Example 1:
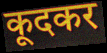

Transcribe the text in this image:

कूदकर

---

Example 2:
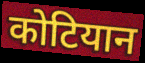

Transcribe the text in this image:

कोटियान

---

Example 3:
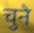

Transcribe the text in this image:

चुने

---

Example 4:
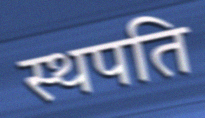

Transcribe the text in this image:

स्थपति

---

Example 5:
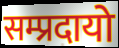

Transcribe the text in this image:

सम्प्रदायो